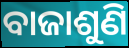
ବାଜାଶୁଣି